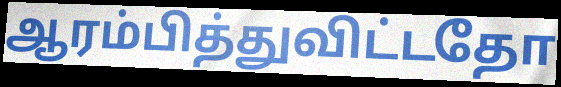
ஆரம்பித்துவிட்டதோ